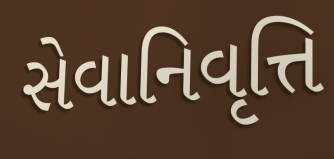
સેવાનિવૃત્તિ